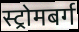
स्ट्रोमबर्ग